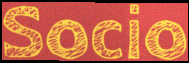
Socio